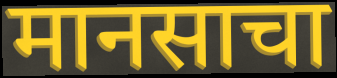
मानसाचा